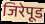
जिरेपूड